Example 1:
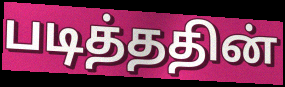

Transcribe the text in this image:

படித்ததின்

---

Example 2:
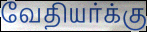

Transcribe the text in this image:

வேதியர்க்கு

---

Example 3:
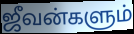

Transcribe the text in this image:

ஜீவன்களும்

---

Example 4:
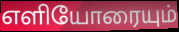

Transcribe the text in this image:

எளியோரையும்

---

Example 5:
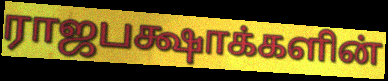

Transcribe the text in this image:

ராஜபக்ஷாக்களின்